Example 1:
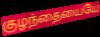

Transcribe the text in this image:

குழந்தையையே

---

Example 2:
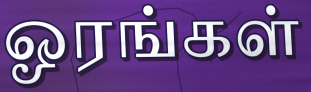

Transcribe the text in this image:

ஓரங்கள்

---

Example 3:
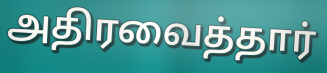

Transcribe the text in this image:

அதிரவைத்தார்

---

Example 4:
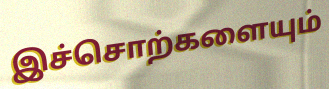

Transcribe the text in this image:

இச்சொற்களையும்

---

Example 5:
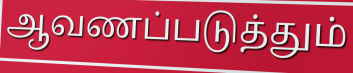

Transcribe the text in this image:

ஆவணப்படுத்தும்